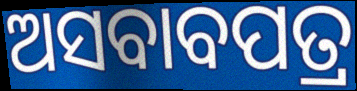
ଅସବାବପତ୍ର